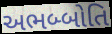
અભબ્બોતિ